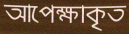
আপেক্ষাকৃত